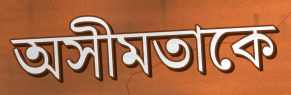
অসীমতাকে